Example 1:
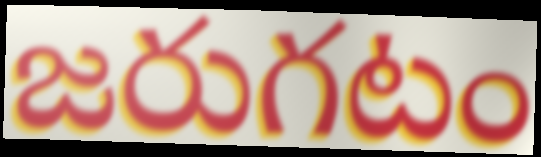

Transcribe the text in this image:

జరుగటం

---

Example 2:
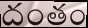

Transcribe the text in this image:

దంతం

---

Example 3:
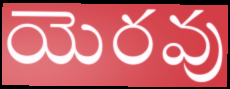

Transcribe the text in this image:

యెరవు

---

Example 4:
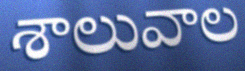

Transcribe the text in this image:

శాలువాల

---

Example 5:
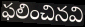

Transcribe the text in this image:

ఫలించినవి